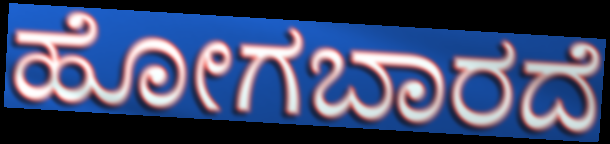
ಹೋಗಬಾರದೆ